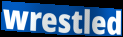
wrestled